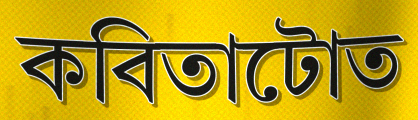
কবিতাটোত